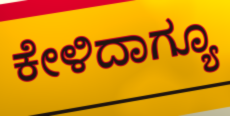
ಕೇಳಿದಾಗ್ಯೂ